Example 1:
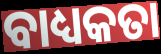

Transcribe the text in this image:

ବାଧ୍ୟକତା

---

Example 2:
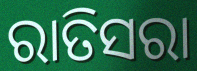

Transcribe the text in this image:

ରାତିସରା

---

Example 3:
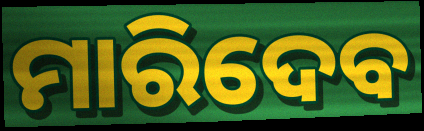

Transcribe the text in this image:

ମାରିଦେବ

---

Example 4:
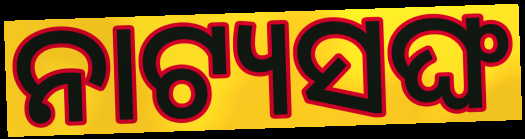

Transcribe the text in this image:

ନାଟ୍ୟସଙ୍ଘ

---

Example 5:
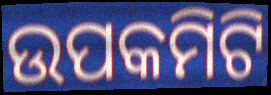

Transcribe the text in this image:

ଉପକମିଟି